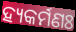
ହ୍ୟକର୍ମଣଃ